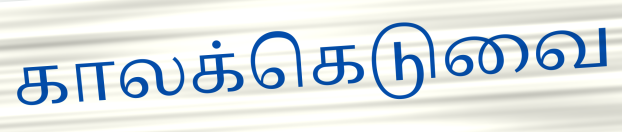
காலக்கெடுவை